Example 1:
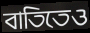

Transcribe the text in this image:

বাতিতেও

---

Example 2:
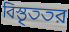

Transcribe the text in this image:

বিস্তৃততর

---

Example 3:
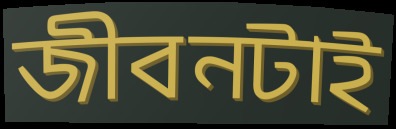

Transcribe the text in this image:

জীবনটাই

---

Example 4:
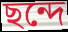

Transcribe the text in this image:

ছন্দে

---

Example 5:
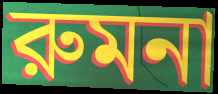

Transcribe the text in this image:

রুমনা